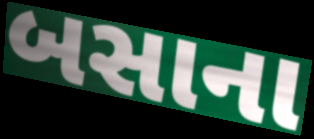
બસાના